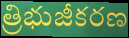
త్రిభుజీకరణ